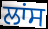
ਲਾਂਸ